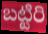
బట్టిరి